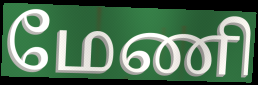
மேணி